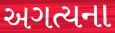
અગત્યના